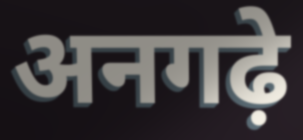
अनगढ़े